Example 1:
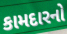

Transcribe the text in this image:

કામદારનો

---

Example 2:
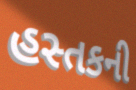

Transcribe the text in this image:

હસ્તકની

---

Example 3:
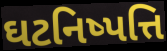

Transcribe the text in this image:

ઘટનિષ્પત્તિ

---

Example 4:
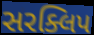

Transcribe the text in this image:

સરક્લિપ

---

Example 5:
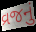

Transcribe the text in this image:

વ્રજનું